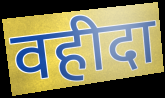
वहीदा